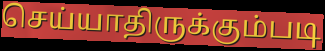
செய்யாதிருக்கும்படி